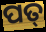
ପତ୍